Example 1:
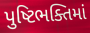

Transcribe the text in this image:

પુષ્ટિભક્તિમાં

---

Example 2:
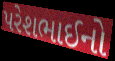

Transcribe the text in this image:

પરેશભાઈનો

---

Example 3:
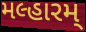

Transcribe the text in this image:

મલ્હારમ્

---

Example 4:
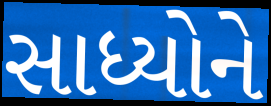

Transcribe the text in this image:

સાધ્યોને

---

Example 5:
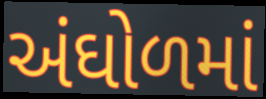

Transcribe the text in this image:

અંઘોળમાં